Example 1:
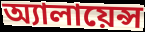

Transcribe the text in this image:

অ্যালায়েন্স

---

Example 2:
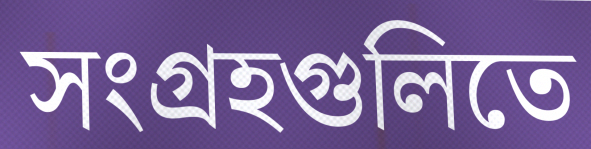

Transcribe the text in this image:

সংগ্রহগুলিতে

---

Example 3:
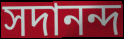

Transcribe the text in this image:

সদানন্দ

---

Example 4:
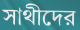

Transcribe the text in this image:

সাথীদের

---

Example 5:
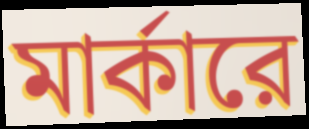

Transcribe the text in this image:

মার্কারে